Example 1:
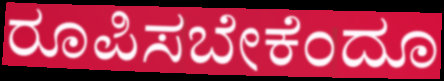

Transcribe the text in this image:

ರೂಪಿಸಬೇಕೆಂದೂ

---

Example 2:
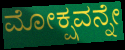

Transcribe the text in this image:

ಮೋಕ್ಷವನ್ನೇ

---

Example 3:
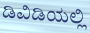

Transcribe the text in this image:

ಡಿವಿಡಿಯಲ್ಲಿ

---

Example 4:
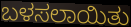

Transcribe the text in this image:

ಬಳಸಲಾಯಿತು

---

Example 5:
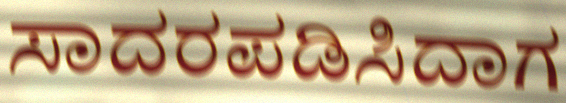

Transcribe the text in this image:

ಸಾದರಪಡಿಸಿದಾಗ